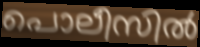
പൊലീസിൽ